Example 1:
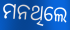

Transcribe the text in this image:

ମନଥିଲେ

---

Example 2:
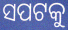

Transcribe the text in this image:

ସପଟକୁ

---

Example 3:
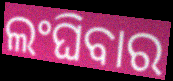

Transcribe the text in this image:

ଲଂଘିବାର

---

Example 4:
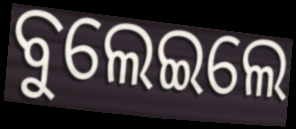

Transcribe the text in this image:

ବୁଲେଇଲେ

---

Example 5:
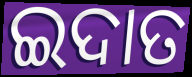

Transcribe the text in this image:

ଇଦାତ